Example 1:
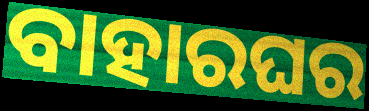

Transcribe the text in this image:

ବାହାରଘର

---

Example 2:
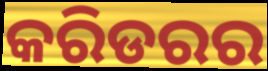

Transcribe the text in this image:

କରିଡରର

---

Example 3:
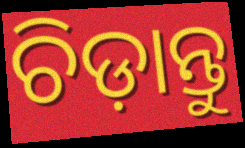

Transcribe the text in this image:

ଚିଡ଼ାନ୍ତୁ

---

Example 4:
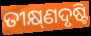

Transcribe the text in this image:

ତୀକ୍ଷ୍‌ଣଦୃଷ୍ଟି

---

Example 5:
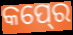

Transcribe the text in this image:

କପ୍‍ରେ